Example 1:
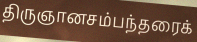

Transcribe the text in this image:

திருஞானசம்பந்தரைக்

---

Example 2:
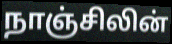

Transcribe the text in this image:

நாஞ்சிலின்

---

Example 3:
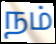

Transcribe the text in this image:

நம்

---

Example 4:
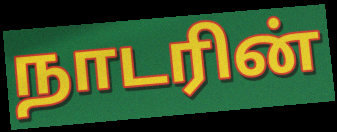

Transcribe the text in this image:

நாடரின்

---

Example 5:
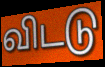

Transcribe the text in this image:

விடடு